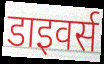
डाइवर्स